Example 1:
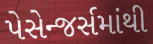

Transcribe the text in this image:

પેસેન્જર્સમાંથી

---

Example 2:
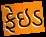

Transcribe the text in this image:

ફેઇડ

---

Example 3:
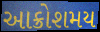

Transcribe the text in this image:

આક્રોશમય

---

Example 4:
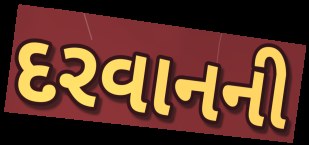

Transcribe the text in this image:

દરવાનની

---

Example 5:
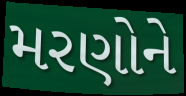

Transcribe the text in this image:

મરણોને